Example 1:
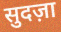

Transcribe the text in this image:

सुदज़ा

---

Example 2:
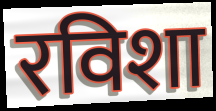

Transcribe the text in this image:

रविशा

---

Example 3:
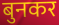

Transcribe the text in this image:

बुनकर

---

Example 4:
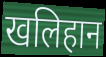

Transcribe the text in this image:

खलिहान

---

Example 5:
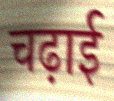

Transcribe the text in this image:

चढ़ाई